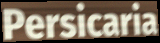
Persicaria